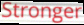
Stronger